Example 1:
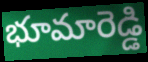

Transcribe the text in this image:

భూమారెడ్డి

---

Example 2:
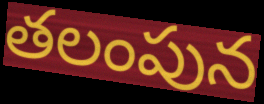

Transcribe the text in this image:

తలంపున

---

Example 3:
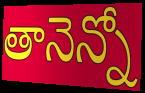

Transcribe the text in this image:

తానెన్నో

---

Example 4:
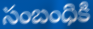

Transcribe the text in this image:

సంబంధికి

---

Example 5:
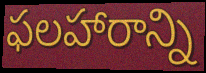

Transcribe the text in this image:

ఫలహారాన్ని